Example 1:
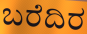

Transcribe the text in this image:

ಬರೆದಿರ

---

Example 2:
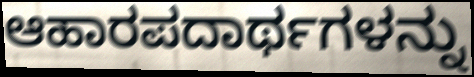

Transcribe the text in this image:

ಆಹಾರಪದಾರ್ಥಗಳನ್ನು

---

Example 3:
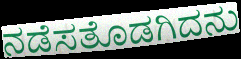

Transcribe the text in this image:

ನಡೆಸತೊಡಗಿದನು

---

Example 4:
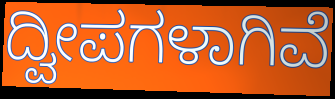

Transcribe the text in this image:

ದ್ವೀಪಗಳಾಗಿವೆ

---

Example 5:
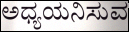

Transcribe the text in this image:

ಅಧ್ಯಯನಿಸುವ